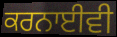
ਕਰਨਾਈਵੀ